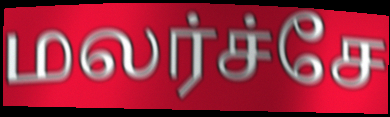
மலர்ச்சே